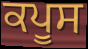
ਕਪੂਸ